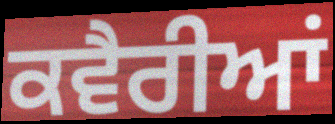
ਕਵੈਰੀਆਂ